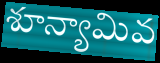
శూన్యామివ